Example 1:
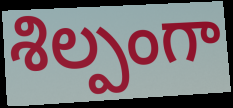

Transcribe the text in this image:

శిల్పంగా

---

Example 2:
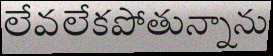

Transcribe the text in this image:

లేవలేకపోతున్నాను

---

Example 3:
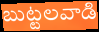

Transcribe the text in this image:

బుట్టలవాడి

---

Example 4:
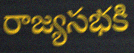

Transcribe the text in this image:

రాజ్యసభకి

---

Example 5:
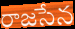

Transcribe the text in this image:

రాజసేన